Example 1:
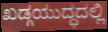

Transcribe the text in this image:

ಖಡ್ಗಯುದ್ಧದಲ್ಲಿ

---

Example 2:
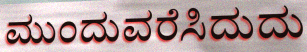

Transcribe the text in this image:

ಮುಂದುವರೆಸಿದುದು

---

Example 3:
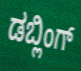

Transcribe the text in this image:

ಡಬ್ಲಿಂಗ್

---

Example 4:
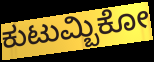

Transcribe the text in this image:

ಕುಟುಮ್ಬಿಕೋ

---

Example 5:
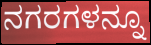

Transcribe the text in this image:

ನಗರಗಳನ್ನೂ